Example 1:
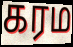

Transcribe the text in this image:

கரம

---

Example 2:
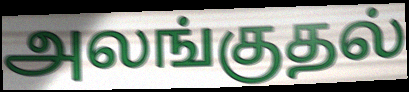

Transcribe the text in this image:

அலங்குதல்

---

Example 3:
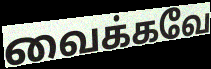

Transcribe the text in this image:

வைக்கவே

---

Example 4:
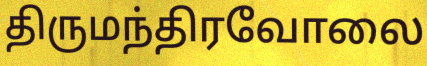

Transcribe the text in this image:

திருமந்திரவோலை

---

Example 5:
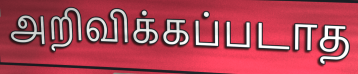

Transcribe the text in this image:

அறிவிக்கப்படாத